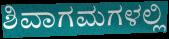
ಶಿವಾಗಮಗಳಲ್ಲಿ